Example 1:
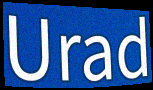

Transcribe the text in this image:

Urad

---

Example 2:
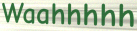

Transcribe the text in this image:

Waahhhhh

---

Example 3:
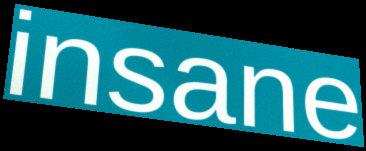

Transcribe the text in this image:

insane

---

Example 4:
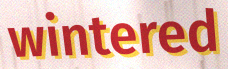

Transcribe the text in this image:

wintered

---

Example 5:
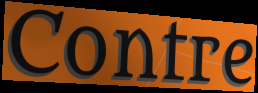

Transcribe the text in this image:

Contre